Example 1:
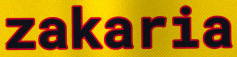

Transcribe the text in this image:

zakaria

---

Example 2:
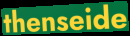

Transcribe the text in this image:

thenseide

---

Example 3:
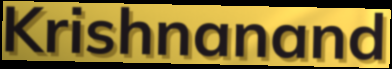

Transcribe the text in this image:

Krishnanand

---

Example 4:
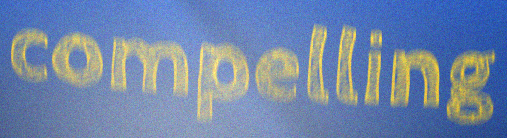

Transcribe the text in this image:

compelling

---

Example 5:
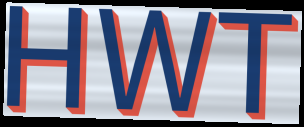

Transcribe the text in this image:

HWT